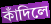
কাঁদিলে